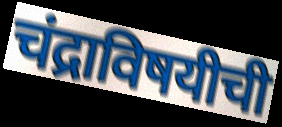
चंद्राविषयीची